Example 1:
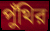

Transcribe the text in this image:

পুঁথির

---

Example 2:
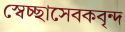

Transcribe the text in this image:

স্বেচ্ছাসেবকবৃন্দ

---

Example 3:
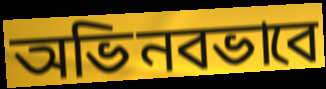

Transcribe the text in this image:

অভিনবভাবে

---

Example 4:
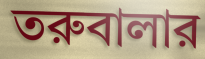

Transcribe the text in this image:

তরুবালার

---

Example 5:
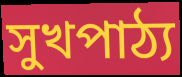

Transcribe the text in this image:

সুখপাঠ্য